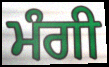
ਮੰਗੀ